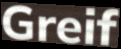
Greif